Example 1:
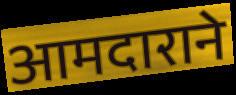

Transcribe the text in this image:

आमदाराने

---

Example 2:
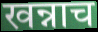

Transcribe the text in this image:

खन्नाच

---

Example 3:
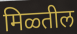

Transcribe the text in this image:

मिळ्तील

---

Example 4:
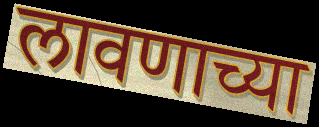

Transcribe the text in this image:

लावणाच्या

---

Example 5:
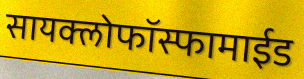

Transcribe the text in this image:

सायक्लोफॉस्फामाईड